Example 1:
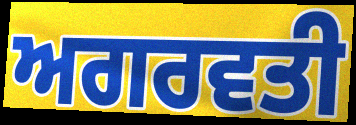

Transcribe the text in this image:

ਅਗਰਵਤੀ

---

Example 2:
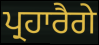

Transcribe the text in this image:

ਪ੍ਰਹਾਰੈਗੇ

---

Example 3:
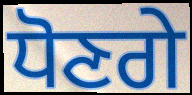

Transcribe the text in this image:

ਧੋਣਗੇ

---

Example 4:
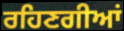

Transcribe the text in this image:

ਰਹਿਣਗੀਆਂ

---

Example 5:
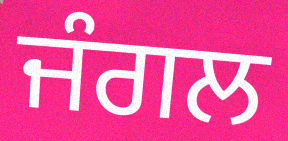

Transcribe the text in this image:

ਜੰਗਲ